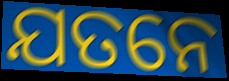
ଯତନେ